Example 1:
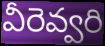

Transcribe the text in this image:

వీరెవ్వరి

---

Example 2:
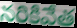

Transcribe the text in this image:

నరికివేత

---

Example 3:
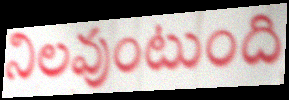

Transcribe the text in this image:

నిలవుంటుంది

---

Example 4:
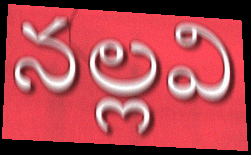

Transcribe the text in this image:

నల్లవి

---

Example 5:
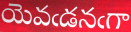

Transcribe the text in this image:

యెవఁడనఁగా